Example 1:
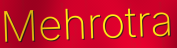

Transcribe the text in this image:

Mehrotra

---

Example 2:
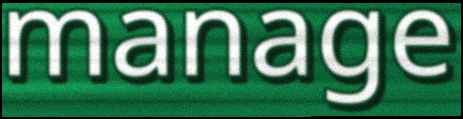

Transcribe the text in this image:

manage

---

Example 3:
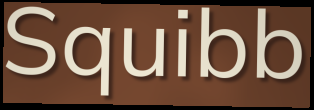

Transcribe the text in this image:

Squibb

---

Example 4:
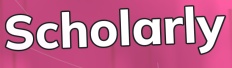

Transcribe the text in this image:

Scholarly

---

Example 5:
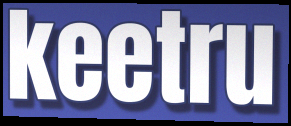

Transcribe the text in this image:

keetru